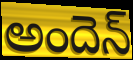
అందెన్